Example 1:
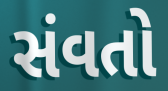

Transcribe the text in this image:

સંવતો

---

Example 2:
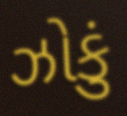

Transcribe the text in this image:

ઝોકું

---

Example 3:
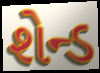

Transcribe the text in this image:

શેન્ડ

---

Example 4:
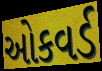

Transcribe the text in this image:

ઓકવર્ડ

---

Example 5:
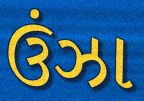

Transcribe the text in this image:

ઉંઝા